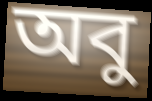
অবু